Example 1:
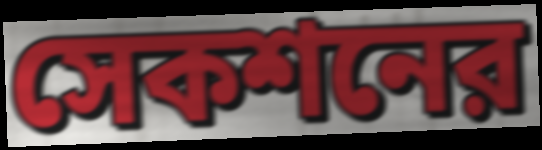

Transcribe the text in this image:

সেকশনের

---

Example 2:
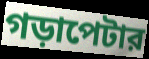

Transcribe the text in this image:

গড়াপেটার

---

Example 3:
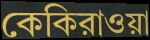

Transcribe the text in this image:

কেকিরাওয়া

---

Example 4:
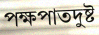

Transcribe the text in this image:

পক্ষপাতদুষ্ট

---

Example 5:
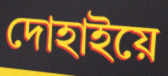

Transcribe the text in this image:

দোহাইয়ে